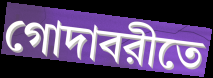
গোদাবরীতে